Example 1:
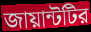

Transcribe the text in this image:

জায়ান্টটির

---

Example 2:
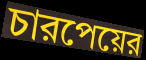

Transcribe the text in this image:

চারপেয়ের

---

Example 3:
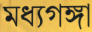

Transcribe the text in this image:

মধ্যগঙ্গা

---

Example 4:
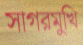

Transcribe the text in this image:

সাগরমুখি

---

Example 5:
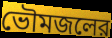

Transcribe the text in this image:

ভৌমজলের